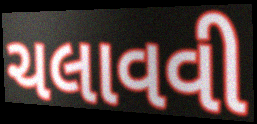
ચલાવવી